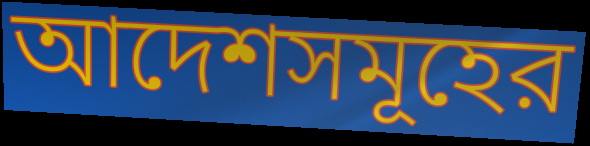
আদেশসমূহের